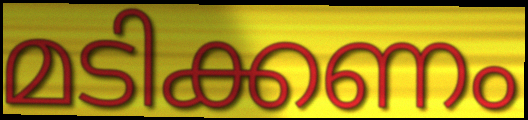
മടിക്കണം